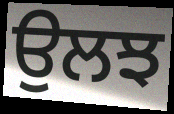
ਉਲਝ